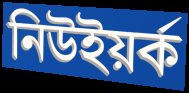
নিউইয়ৰ্ক